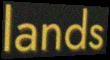
lands